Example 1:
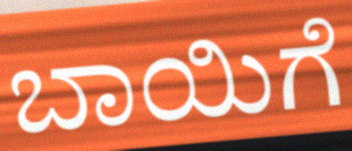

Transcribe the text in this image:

ಬಾಯಿಗೆ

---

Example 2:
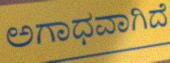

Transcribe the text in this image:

ಅಗಾಧವಾಗಿದೆ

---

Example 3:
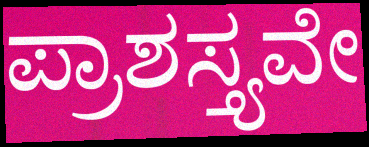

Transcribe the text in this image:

ಪ್ರಾಶಸ್ತ್ಯವೇ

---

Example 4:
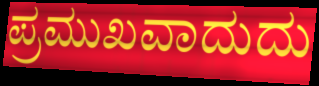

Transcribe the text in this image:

ಪ್ರಮುಖವಾದುದು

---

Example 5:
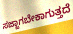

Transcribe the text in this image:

ಸಜ್ಜಾಗಬೇಕಾಗುತ್ತದೆ